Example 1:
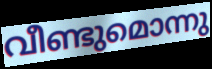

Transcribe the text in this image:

വീണ്ടുമൊന്നു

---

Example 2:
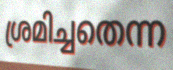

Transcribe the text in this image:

ശ്രമിച്ചതെന്ന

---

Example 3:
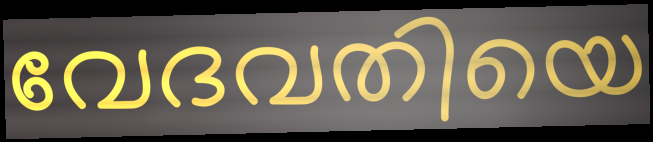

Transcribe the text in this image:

വേദവതിയെ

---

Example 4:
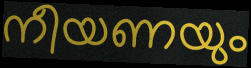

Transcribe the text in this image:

നീയണയും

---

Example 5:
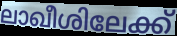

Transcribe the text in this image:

ലാഖീശിലേക്ക്